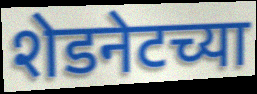
शेडनेटच्या